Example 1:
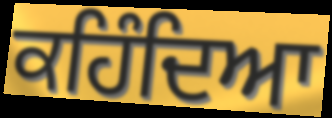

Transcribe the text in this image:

ਕਹਿੰਦਿਆ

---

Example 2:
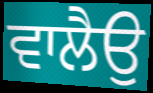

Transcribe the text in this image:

ਵਾਲੈਉ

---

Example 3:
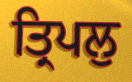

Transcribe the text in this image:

ਤ੍ਰਿਪਲੁ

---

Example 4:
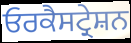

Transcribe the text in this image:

ਓਰਕੈਸਟ੍ਰੇਸ਼ਨ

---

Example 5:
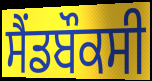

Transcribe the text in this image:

ਸੈਂਡਬੌਕਸੀ